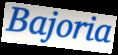
Bajoria